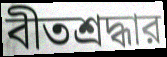
বীতশ্রদ্ধার